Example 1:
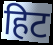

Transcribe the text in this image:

हिट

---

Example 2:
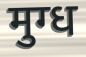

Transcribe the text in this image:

मुग्ध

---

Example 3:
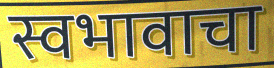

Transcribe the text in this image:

स्वभावाचा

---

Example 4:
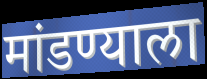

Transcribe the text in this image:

मांडण्याला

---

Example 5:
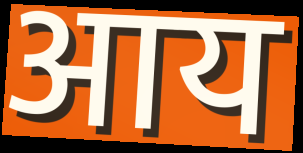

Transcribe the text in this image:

आय